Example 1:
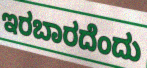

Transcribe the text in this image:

ಇರಬಾರದೆಂದು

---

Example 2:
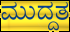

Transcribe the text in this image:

ಮುದ್ದತ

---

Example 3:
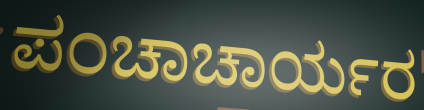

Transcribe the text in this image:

ಪಂಚಾಚಾರ್ಯರ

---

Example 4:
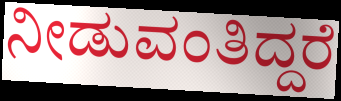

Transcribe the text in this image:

ನೀಡುವಂತಿದ್ದರೆ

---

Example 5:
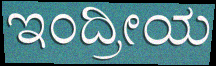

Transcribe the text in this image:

ಇಂದ್ರೀಯ